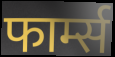
फार्म्स